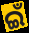
ଇଁ